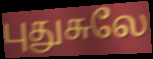
புதுசுலே